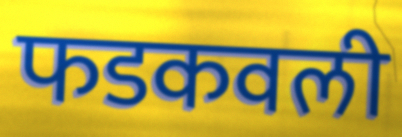
फडकवली